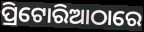
ପ୍ରିଟୋରିଆଠାରେ